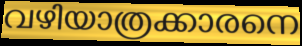
വഴിയാത്രക്കാരനെ